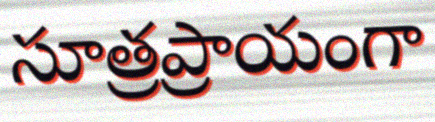
సూత్రప్రాయంగా